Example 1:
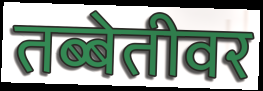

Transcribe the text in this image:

तब्बेतीवर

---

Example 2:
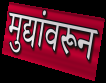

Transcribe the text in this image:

मुद्यांवरून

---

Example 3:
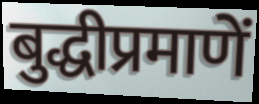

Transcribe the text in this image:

बुद्धीप्रमाणें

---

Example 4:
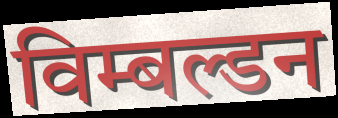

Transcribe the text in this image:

विम्बल्डन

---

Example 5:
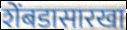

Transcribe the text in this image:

शेंबडासारखा